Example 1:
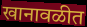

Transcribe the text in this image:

खानावळीत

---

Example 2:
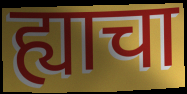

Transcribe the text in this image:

ह्याचा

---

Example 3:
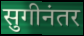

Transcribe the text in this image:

सुगीनंतर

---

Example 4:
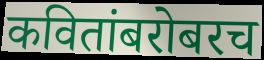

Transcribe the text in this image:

कवितांबरोबरच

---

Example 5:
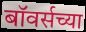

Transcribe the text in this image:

बॉवर्सच्या